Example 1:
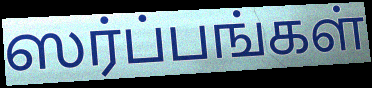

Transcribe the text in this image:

ஸர்ப்பங்கள்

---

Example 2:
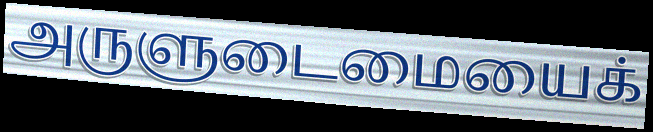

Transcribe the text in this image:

அருளுடைமையைக்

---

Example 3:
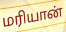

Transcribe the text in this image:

மரியான்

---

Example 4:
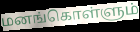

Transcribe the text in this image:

மனங்கொள்ளும்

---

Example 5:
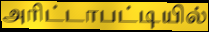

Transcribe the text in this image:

அரிட்டாபட்டியில்